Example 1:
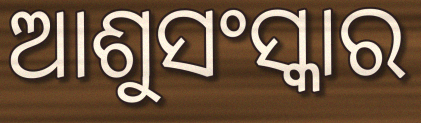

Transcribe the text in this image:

ଆଶୁସଂସ୍କାର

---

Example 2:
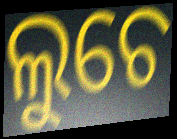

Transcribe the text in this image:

ଲୁଚେ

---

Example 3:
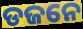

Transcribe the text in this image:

ଡଜନେ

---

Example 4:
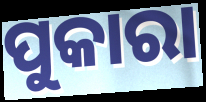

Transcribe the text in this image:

ପୁକାରା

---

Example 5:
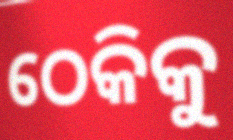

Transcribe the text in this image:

ଠେକିକୁ